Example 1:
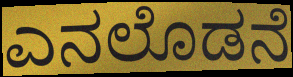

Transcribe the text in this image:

ಎನಲೊಡನೆ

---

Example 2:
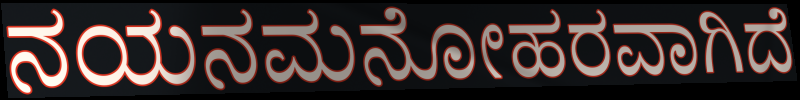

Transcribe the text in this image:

ನಯನಮನೋಹರವಾಗಿದೆ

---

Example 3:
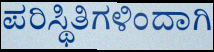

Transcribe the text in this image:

ಪರಿಸ್ಥಿತಿಗಳಿಂದಾಗಿ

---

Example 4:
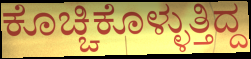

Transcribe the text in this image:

ಕೊಚ್ಚಿಕೊಳ್ಳುತ್ತಿದ್ದ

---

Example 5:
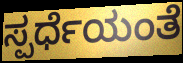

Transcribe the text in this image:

ಸ್ಪರ್ಧೆಯಂತೆ